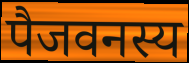
पैजवनस्य